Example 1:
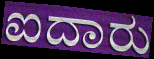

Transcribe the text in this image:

ಐದಾರು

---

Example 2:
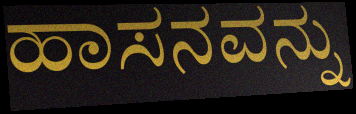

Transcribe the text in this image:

ಹಾಸನವನ್ನು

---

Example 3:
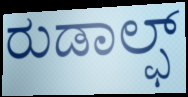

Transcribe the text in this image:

ರುಡಾಲ್ಫ್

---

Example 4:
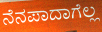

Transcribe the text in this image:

ನೆನಪಾದಾಗೆಲ್ಲ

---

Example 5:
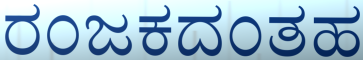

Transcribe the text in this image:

ರಂಜಕದಂತಹ